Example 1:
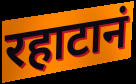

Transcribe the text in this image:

रहाटानं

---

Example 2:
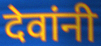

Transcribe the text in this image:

देवांनी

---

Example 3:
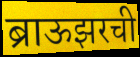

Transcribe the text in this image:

ब्राऊझरची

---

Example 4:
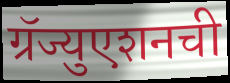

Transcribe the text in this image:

ग्रॅज्युएशनची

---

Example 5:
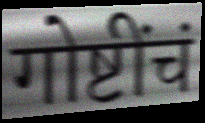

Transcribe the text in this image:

गोष्टींचं